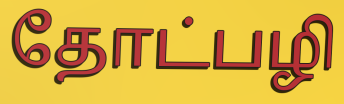
தோட்பழி